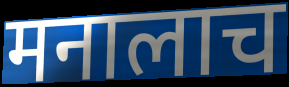
मनालाच